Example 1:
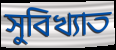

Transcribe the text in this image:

সুবিখ্যাত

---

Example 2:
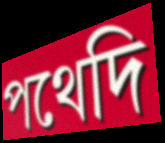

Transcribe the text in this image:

পথেদি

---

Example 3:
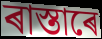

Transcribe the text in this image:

ৰাস্তাৰে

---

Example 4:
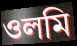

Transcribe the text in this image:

ওলমি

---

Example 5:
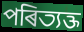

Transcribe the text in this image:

পৰিত্যক্ত